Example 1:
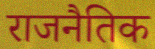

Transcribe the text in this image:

राजनैतिक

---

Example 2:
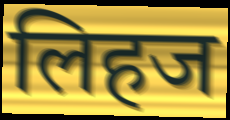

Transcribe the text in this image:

लिहज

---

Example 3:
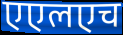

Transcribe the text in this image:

एएलएच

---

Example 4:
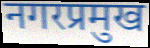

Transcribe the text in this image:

नगरप्रमुख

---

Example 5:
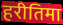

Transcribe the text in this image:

हरीतिमा